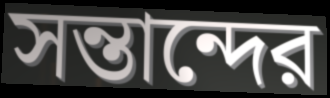
সন্তান্দের